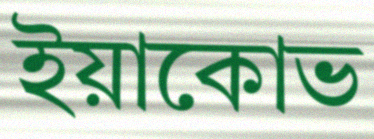
ইয়াকোভ